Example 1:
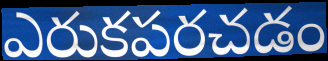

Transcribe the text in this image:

ఎరుకపరచడం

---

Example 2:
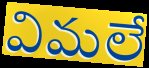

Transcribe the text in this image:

విమలే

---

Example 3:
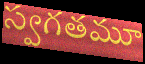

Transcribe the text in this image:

స్వగతమూ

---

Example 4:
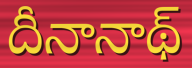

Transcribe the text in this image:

దీనానాథ్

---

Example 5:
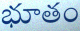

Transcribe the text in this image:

భూతం